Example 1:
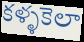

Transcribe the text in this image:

కళ్ళకెలా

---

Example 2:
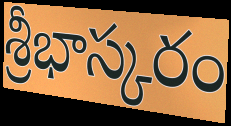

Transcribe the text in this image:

శ్రీభాస్కరం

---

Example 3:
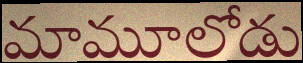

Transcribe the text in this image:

మామూలోడు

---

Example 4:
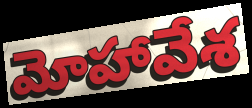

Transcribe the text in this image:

మోహావేశ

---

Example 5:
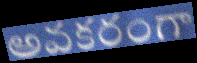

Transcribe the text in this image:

అవకరంగా